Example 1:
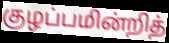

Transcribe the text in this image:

குழப்பமின்றித்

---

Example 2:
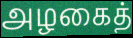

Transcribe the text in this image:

அழகைத்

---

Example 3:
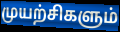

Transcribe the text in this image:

முயற்சிகளும்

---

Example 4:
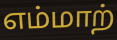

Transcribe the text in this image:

எம்மாற்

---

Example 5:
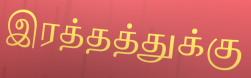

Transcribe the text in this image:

இரத்தத்துக்கு